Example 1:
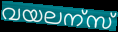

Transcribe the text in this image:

വയലന്സ്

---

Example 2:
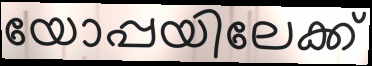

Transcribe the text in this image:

യോപ്പയിലേക്ക്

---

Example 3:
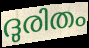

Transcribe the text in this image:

ദുരിതം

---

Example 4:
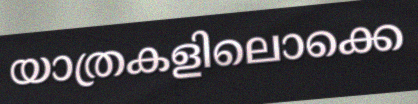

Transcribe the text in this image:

യാത്രകളിലൊക്കെ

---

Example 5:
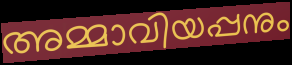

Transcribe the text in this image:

അമ്മാവിയപ്പനും